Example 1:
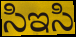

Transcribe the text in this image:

సిఇసి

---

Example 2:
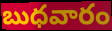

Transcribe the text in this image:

బుధవారం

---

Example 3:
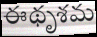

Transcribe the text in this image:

ఈథృశమ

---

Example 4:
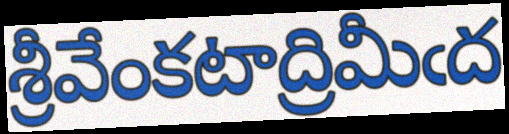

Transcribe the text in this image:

శ్రీవేంకటాద్రిమీఁద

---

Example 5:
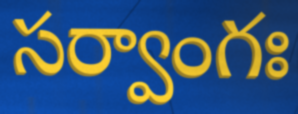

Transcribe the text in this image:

సర్వాంగః